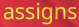
assigns